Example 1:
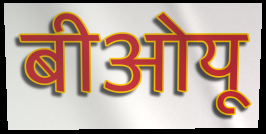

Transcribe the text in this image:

बीओयू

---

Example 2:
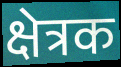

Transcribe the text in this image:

क्षेत्रक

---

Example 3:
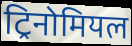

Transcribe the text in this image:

ट्रिनोमियल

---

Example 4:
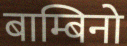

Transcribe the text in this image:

बाम्बिनो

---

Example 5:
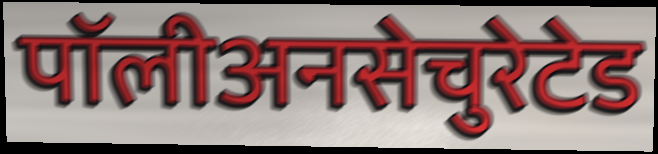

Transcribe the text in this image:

पॉलीअनसेचुरेटेड